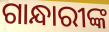
ଗାନ୍ଧାରୀଙ୍କ